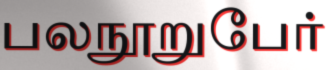
பலநூறுபேர்